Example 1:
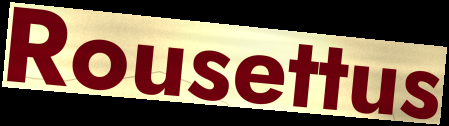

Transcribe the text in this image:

Rousettus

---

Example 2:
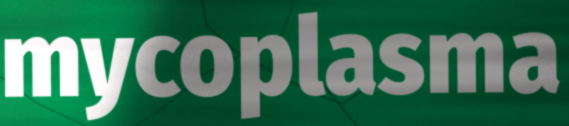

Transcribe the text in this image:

mycoplasma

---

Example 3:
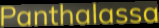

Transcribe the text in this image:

Panthalassa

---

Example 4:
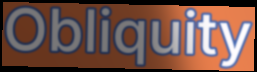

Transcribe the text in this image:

Obliquity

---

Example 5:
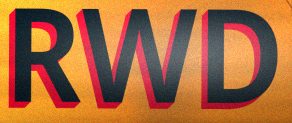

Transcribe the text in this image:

RWD